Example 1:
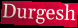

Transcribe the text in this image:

Durgesh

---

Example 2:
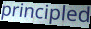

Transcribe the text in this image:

principled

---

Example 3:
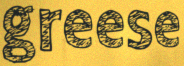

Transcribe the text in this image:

greese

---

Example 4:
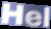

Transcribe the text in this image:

Hel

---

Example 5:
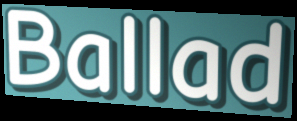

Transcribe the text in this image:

Ballad